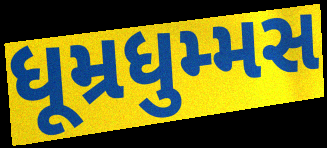
ધૂમ્રધુમ્મસ